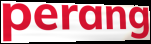
perang